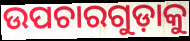
ଉପଚାରଗୁଡ଼ାକୁ